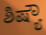
ಶಿಷ್ಯೌ